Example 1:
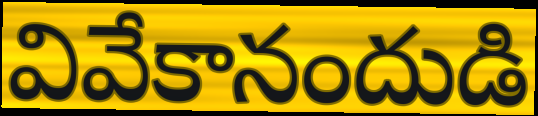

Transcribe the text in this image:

వివేకానందుడి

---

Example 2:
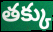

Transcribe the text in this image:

తక్కు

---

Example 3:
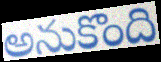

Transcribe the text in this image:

అనుకొంది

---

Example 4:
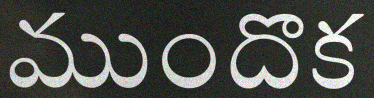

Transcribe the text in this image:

ముందొక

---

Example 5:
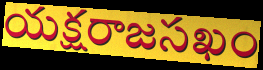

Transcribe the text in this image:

యక్షరాజసఖం